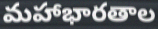
మహాభారతాల